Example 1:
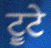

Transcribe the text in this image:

ਟੂਟੇ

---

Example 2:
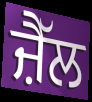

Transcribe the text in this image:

ਜ਼ੈੱਲ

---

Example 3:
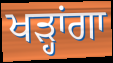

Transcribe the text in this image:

ਖੜ੍ਹਾਂਗਾ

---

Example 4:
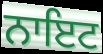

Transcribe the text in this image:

ਨਾਇਟ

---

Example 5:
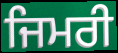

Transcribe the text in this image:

ਜਿਮਰੀ